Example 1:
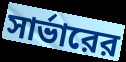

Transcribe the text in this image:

সার্ভারের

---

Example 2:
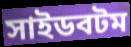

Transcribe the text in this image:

সাইডবটম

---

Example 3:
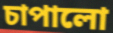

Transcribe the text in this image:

চাপালো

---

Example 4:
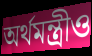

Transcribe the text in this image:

অর্থমন্ত্রীও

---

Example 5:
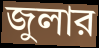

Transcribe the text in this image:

জুলার